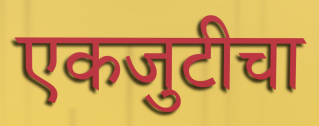
एकजुटीचा